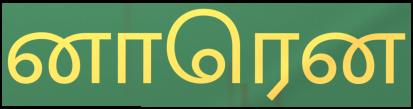
னாரென